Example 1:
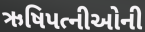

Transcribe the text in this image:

ઋષિપત્નીઓની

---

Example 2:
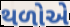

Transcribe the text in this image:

થળોએ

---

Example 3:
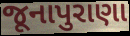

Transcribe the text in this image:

જૂનાપુરાણા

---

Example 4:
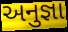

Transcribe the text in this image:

અનુજ્ઞા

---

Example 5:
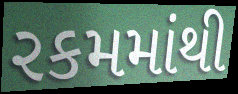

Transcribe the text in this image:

રકમમાંથી